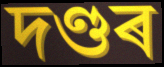
দণ্ডৰ